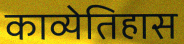
काव्येतिहास